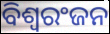
ବିଶ୍ୱରଂଜନ